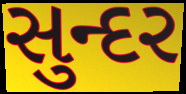
સુન્દર